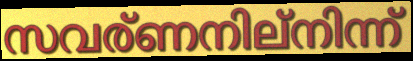
സവര്ണനില്നിന്ന്